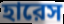
হারেস